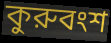
কুরুবংশ